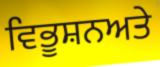
ਵਿਭੂਸ਼ਨਅਤੇ